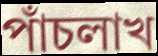
পাঁচলাখ